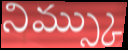
నిమ్స్కు